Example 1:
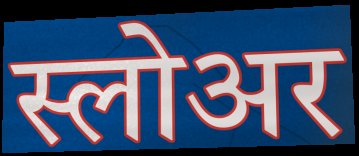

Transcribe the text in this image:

स्लोअर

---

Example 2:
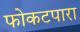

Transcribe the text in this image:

फोकटपारा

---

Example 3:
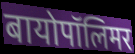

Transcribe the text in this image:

बायोपॉलिमर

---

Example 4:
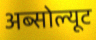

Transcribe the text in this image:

अब्सोल्यूट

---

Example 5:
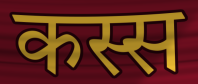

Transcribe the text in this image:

कस्स